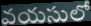
వయసులో